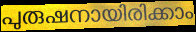
പുരുഷനായിരിക്കാം